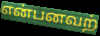
என்பனவற்